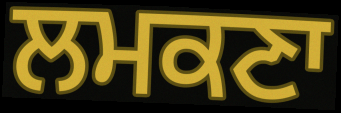
ਲਮਕਣਾ